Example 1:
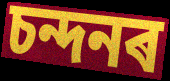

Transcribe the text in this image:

চন্দনৰ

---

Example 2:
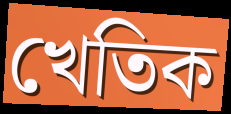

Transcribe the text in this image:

খেতিক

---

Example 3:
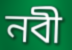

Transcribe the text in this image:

নবী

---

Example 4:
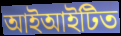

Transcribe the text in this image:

আইআইটিত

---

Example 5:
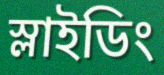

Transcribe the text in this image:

স্লাইডিং